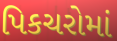
પિકચરોમાં